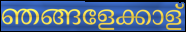
ഞങ്ങളേക്കാള്